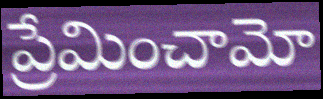
ప్రేమించామో